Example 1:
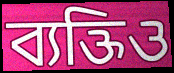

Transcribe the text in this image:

ব্যক্তিও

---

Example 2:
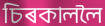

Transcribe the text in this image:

চিৰকাললৈ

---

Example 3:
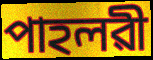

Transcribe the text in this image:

পাহলৱী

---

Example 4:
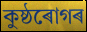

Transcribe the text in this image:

কুষ্ঠৰোগৰ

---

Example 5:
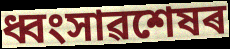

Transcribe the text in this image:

ধ্বংসাৱশেষৰ